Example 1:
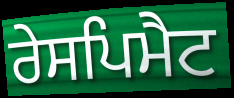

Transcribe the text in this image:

ਰੇਸਪਿਮੈਟ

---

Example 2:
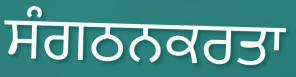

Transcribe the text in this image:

ਸੰਗਠਨਕਰਤਾ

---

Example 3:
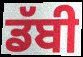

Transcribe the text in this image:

ਡੱਬੀ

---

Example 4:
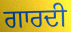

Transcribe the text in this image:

ਗਾਰਦੀ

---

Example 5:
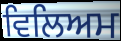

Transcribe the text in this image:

ਵਿਲਿਅਮ